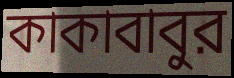
কাকাবাবুর